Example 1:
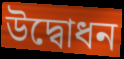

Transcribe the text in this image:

উদ্বোধন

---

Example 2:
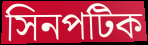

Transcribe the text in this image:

সিনপটিক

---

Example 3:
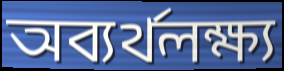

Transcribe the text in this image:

অব্যর্থলক্ষ্য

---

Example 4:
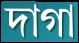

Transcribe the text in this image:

দাগা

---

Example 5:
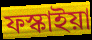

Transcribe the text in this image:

ফস্কাইয়া